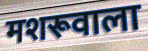
मशरूवाला